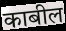
काबील